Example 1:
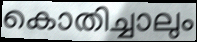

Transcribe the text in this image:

കൊതിച്ചാലും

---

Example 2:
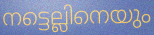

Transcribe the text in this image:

നട്ടെല്ലിനെയും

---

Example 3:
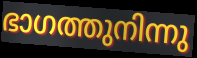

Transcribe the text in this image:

ഭാഗത്തുനിന്നു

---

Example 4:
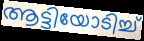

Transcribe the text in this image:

ആട്ടിയോടിച്ച്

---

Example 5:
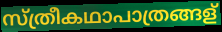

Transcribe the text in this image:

സ്ത്രീകഥാപാത്രങ്ങള്